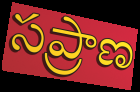
సప్రాణ